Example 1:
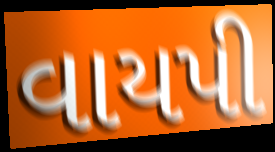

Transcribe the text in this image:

વાયપી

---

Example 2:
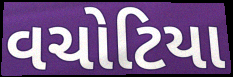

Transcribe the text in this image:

વચોટિયા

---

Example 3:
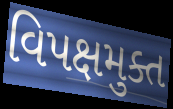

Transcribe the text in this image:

વિપક્ષમુક્ત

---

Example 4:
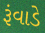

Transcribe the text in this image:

રૂંવાડે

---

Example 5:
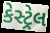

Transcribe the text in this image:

કેસ્ટ્રેલ